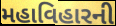
મહાવિહારની